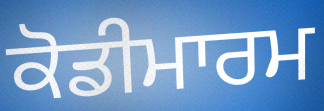
ਕੋਡੀਮਾਰਮ